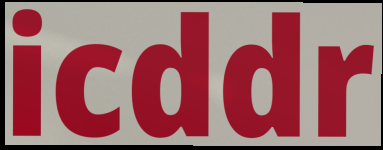
icddr